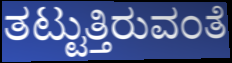
ತಟ್ಟುತ್ತಿರುವಂತೆ